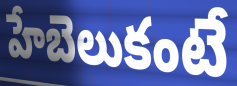
హేబెలుకంటే